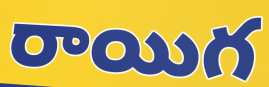
రాయిగ